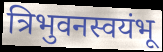
त्रिभुवनस्वयंभू